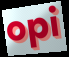
opi